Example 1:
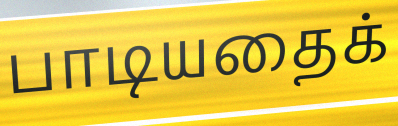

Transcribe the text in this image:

பாடியதைக்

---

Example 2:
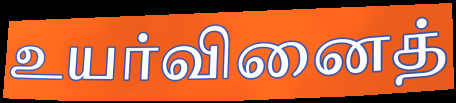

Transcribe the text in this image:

உயர்வினைத்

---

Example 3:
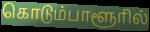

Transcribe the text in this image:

கொடும்பாளூரில்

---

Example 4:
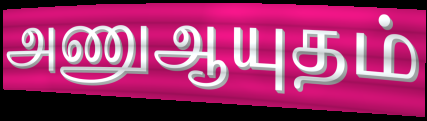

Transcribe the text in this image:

அணுஆயுதம்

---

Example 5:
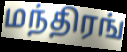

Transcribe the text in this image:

மந்திரங்